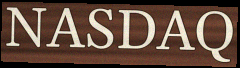
NASDAQ